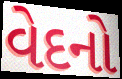
વેદનો